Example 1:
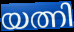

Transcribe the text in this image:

യത്നി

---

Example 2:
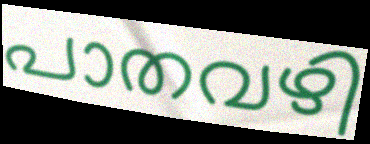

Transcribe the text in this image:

പാതവഴി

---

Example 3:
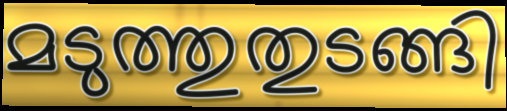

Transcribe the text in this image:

മടുത്തുതുടങ്ങി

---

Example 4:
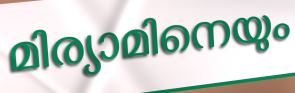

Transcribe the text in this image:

മിര്യാമിനെയും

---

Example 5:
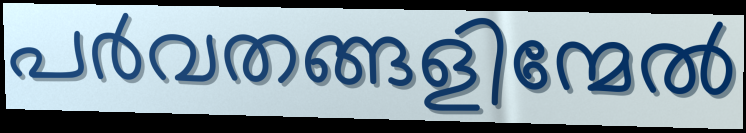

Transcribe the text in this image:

പർവതങ്ങളിന്മേൽ